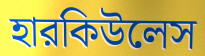
হারকিউলেস